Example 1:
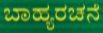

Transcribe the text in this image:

ಬಾಹ್ಯರಚನೆ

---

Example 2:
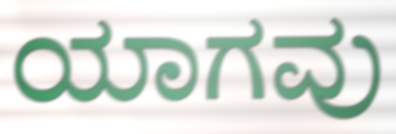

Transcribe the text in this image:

ಯಾಗವು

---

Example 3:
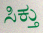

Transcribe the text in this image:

ಸಿಕ್ತು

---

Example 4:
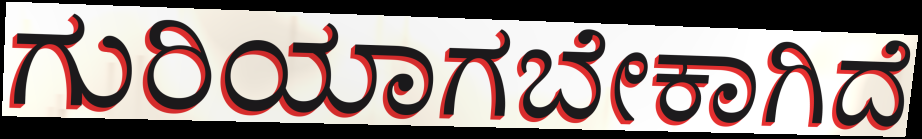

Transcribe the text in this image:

ಗುರಿಯಾಗಬೇಕಾಗಿದೆ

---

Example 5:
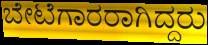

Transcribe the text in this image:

ಬೇಟೆಗಾರರಾಗಿದ್ದರು